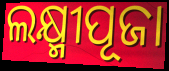
ଲକ୍ଷ୍ମୀପୂଜା